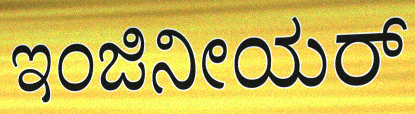
ಇಂಜಿನೀಯರ್